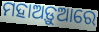
ମହାଅଡ଼ୁଆରେ